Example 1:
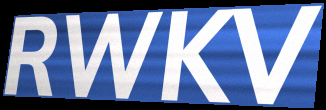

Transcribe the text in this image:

RWKV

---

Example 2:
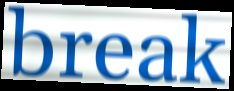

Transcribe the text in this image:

break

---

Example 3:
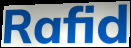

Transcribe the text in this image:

Rafid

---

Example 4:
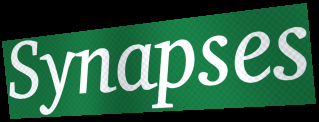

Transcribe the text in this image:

Synapses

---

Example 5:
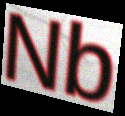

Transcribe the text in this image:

Nb